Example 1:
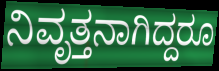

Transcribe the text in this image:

ನಿವೃತ್ತನಾಗಿದ್ದರೂ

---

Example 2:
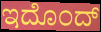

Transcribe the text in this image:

ಇದೊಂದ್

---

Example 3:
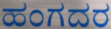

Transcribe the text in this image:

ಹಂಗದರ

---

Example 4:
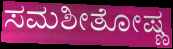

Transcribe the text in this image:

ಸಮಶೀತೋಷ್ಣ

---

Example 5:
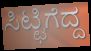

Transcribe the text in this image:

ಸಿಟ್ಟಿಗೆದ್ದ